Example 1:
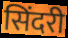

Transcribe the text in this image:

सिंदरी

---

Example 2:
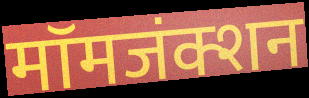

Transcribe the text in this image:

मॉमजंक्शन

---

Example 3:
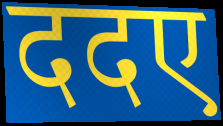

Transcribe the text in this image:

ददए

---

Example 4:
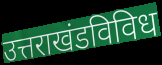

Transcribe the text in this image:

उत्तराखंडविविध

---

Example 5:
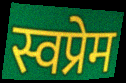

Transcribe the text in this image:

स्वप्रेम